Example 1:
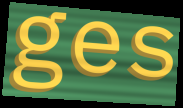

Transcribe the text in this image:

ges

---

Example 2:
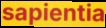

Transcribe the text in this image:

sapientia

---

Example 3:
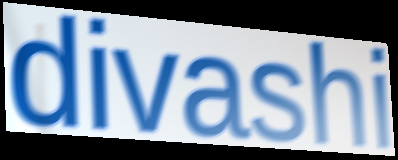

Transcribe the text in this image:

divashi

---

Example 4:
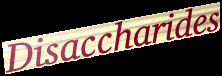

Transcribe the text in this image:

Disaccharides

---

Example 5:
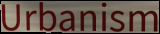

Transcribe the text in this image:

Urbanism